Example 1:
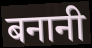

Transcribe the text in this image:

बनानी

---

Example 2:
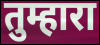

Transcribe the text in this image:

तुम्हारा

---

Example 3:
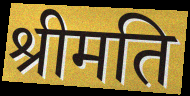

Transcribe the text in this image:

श्रीमति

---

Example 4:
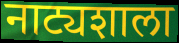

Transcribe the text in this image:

नाट्यशाला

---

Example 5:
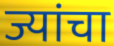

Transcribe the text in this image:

ज्यांचा